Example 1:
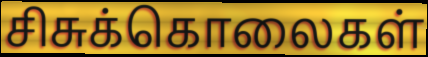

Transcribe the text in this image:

சிசுக்கொலைகள்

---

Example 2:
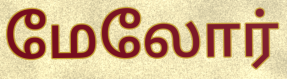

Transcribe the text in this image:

மேலோர்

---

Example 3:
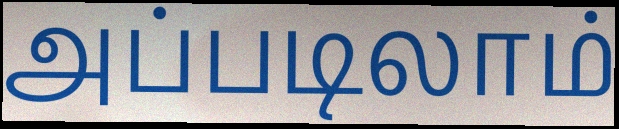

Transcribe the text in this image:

அப்படிலாம்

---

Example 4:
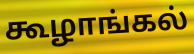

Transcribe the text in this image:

கூழாங்கல்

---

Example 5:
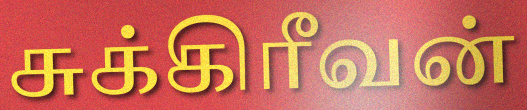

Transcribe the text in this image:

சுக்கிரீவன்